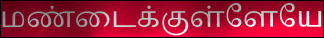
மண்டைக்குள்ளேயே